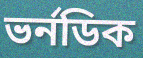
ভর্নডিক